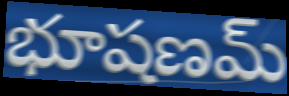
భూషణమ్